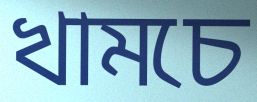
খামচে